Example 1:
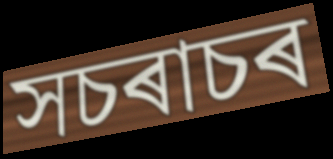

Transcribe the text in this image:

সচৰাচৰ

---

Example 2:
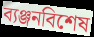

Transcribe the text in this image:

ব্যঞ্জনবিশেষ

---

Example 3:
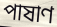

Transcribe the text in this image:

পাষাণ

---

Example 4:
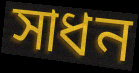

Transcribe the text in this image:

সাধন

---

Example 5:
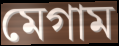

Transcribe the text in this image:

মেগাম